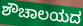
ಶೌಚಾಲಯದ